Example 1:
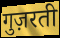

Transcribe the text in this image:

गुज़रती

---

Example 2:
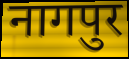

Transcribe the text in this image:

नागपुर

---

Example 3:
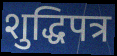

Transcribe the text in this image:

शुद्धिपत्र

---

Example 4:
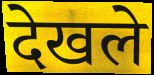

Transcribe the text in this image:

देखले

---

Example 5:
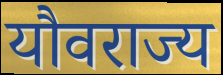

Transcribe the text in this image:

यौवराज्य